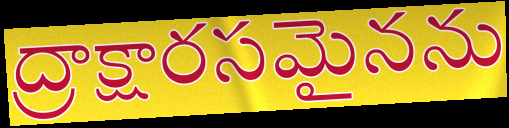
ద్రాక్షారసమైనను